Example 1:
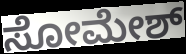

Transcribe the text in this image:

ಸೋಮೇಶ್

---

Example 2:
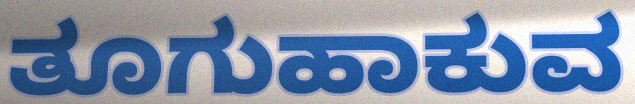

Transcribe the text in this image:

ತೂಗುಹಾಕುವ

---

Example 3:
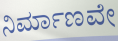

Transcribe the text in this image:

ನಿರ್ಮಾಣವೇ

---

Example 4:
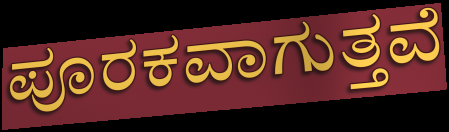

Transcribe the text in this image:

ಪೂರಕವಾಗುತ್ತವೆ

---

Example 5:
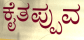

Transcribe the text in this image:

ಕೈತಪ್ಪುವ